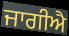
ਜਾਗੀਐ